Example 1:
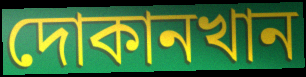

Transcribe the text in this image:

দোকানখান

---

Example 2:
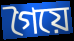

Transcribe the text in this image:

গৈয়ে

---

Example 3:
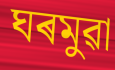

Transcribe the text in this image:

ঘৰমুৱা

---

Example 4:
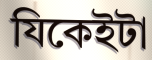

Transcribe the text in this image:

যিকেইটা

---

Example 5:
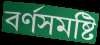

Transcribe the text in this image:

বৰ্ণসমষ্টি